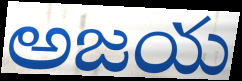
అజయ